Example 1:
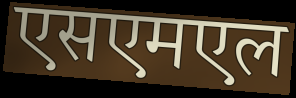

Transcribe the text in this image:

एसएमएल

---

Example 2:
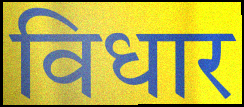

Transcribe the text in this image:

विधार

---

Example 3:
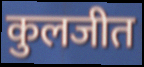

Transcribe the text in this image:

कुलजीत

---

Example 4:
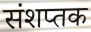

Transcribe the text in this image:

संशप्तक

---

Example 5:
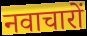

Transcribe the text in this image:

नवाचारों